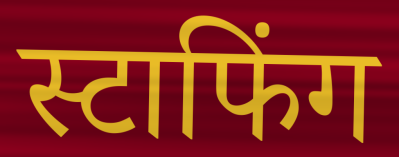
स्टाफिंग